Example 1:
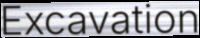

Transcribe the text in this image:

Excavation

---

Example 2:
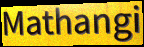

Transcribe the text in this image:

Mathangi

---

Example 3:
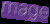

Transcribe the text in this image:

mage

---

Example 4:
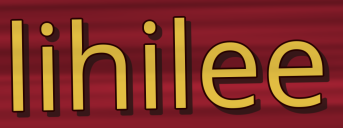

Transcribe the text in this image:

lihilee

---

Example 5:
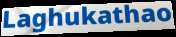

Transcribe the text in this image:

Laghukathao